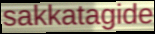
sakkatagide